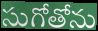
సుగోతోను